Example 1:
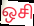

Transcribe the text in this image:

ஒசி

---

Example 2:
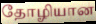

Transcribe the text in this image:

தோழியான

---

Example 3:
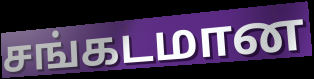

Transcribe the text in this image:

சங்கடமான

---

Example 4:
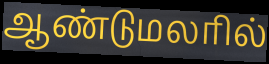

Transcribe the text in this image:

ஆண்டுமலரில்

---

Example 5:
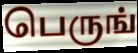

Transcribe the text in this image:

பெருங்